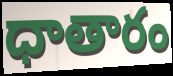
ధాతారం